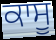
ਕਾਸੂ